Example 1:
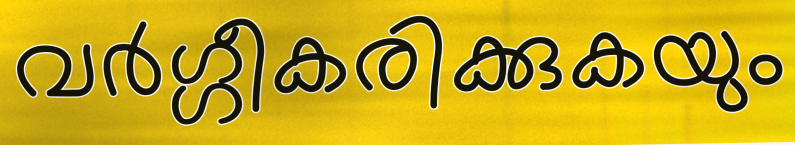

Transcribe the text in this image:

വർഗ്ഗീകരിക്കുകയും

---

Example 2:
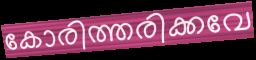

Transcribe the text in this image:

കോരിത്തരിക്കവേ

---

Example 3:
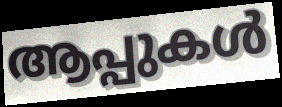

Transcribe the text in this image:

ആപ്പുകൾ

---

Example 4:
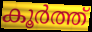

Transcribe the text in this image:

കൂർത്ത്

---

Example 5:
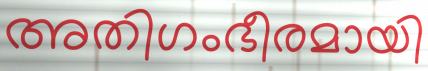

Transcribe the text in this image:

അതിഗംഭീരമായി